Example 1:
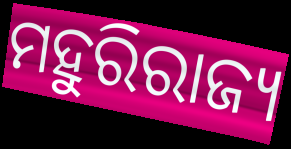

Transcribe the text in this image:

ମହୁରିରାଜ୍ୟ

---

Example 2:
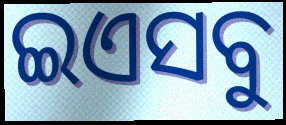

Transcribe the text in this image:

ଇଏସବୁ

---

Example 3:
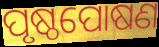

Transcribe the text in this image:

ପୃଷ୍ଠପୋଷଣ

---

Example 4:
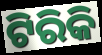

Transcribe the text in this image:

ଟିରିକି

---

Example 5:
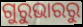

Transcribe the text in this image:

ଗୁରୁଭାରରୁ